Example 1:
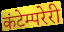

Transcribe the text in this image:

कंटेम्परेरी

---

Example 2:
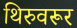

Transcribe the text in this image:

थिरुवरूर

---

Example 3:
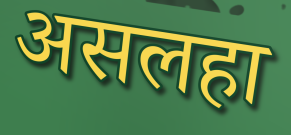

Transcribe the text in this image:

असलहा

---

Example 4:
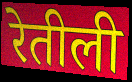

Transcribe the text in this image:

रेतीली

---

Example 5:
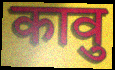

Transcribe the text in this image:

कावु